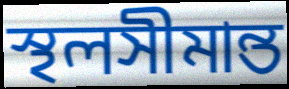
স্থলসীমান্ত